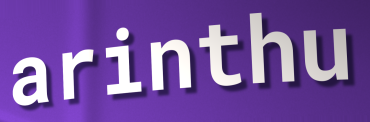
arinthu